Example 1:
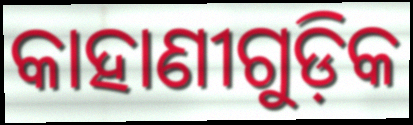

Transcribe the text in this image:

କାହାଣୀଗୁଡ଼ିକ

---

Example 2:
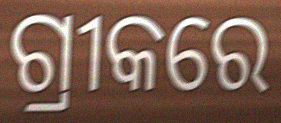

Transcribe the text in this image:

ଗ୍ରୀକରେ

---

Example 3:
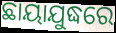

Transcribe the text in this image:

ଛାୟାଯୁଦ୍ଧରେ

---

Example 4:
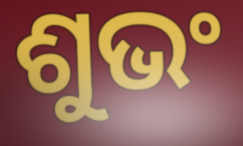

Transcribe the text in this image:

ଶୁଭଂ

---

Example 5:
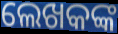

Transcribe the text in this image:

ଲେଖକଙ୍କ